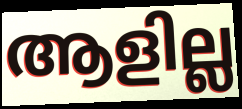
ആളില്ല